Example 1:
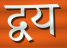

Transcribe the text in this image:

द्वय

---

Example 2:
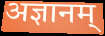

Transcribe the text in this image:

अज्ञानम्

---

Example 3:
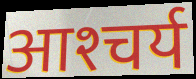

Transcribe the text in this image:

आश्चर्य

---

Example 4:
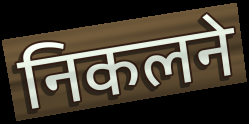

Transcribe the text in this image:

निकलने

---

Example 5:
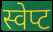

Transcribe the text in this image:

स्वेप्ट